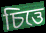
চিত্তে